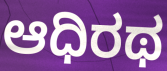
ಆಧಿರಥ